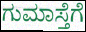
ಗುಮಾಸ್ತೆಗೆ